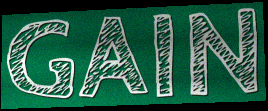
GAIN